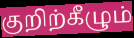
குறிற்கீழும்